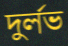
দুর্লভ